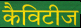
कैविटीज